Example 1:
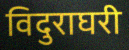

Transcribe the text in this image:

विदुराघरी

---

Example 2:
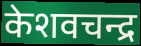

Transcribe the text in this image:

केशवचन्द्र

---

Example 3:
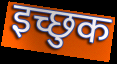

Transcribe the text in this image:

इच्छुक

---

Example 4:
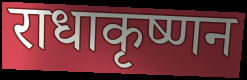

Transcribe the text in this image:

राधाकृष्णन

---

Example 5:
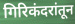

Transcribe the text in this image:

गिरिकंदरांतून